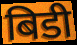
बिडी